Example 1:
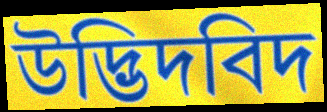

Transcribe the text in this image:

উদ্ভিদবিদ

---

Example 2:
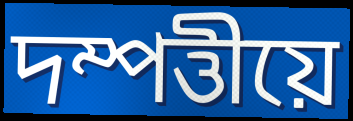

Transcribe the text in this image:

দম্পত্তীয়ে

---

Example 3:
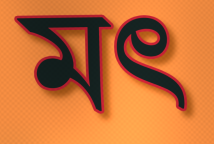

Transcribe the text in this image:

মৎ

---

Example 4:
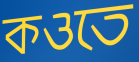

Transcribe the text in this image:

কওতে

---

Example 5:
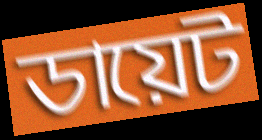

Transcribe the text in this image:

ডায়েট